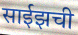
साईझची